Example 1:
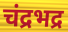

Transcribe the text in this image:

चंद्रभद्र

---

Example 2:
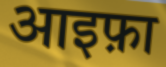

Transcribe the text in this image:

आइफ़ा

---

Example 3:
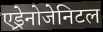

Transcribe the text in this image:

एड्रेनोजेनिटल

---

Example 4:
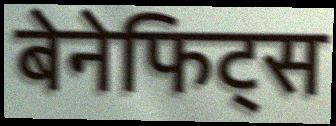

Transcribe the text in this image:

बेनेफिट्स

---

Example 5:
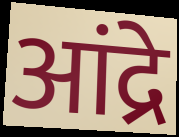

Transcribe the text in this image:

आंद्रे